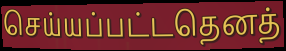
செய்யப்பட்டதெனத்